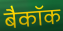
बैकॉक